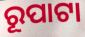
ରୂପାଟା